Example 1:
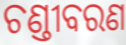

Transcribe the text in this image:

ଚଣ୍ଡୀବରଣ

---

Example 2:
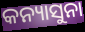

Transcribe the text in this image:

କନ୍ୟାସୁନା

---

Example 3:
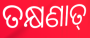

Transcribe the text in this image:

ତକ୍ଷଣାତ୍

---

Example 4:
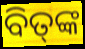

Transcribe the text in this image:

ବିତ୍‌ଙ୍କ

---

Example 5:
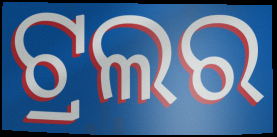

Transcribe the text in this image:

ଟ୍ରଲର